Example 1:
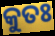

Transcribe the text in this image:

କୁତଃ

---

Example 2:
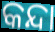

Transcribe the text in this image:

କନ୍ଦା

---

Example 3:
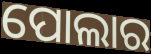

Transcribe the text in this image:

ପୋଲାର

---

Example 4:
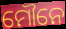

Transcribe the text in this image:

ମୌନେ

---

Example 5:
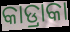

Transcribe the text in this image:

କାଡ୍ରାକା